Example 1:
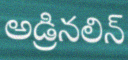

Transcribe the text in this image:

అడ్రినలిన్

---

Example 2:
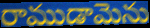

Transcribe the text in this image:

రాముడామెను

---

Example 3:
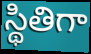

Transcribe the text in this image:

స్థితిగా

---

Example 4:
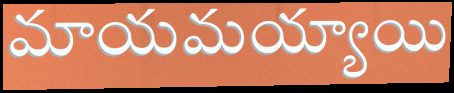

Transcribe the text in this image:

మాయమయ్యాయి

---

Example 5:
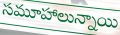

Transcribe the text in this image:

సమూహాలున్నాయి